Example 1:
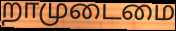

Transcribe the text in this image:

றாமுடைமை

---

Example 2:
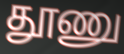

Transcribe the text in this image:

தூணு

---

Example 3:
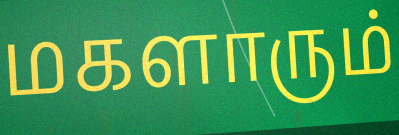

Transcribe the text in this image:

மகளாரும்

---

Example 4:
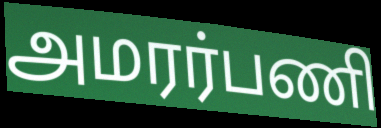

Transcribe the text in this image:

அமரர்பணி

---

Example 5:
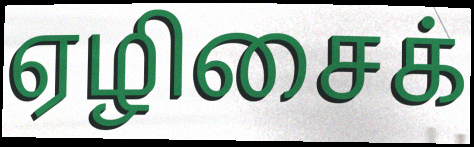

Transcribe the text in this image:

ஏழிசைக்